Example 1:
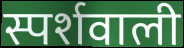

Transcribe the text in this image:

स्पर्शवाली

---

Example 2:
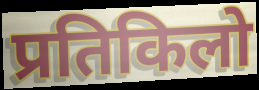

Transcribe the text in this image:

प्रतिकिलो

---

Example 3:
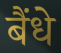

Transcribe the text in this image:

बैंधे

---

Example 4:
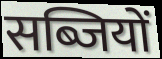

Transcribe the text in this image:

सब्ज़ियों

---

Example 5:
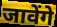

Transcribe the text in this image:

जावेंगे